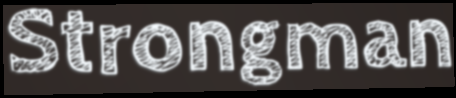
Strongman